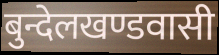
बुन्देलखण्डवासी